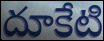
దూకేటి